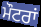
ਮੌਟਰਾਂ